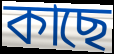
কাছে